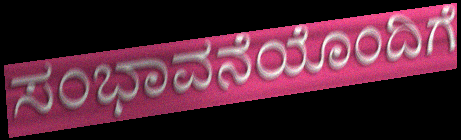
ಸಂಭಾವನೆಯೊಂದಿಗೆ